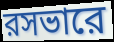
রসভারে